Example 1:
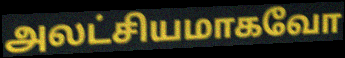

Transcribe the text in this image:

அலட்சியமாகவோ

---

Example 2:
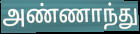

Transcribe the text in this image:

அண்ணாந்து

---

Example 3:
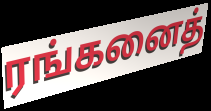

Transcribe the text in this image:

ரங்கனைத்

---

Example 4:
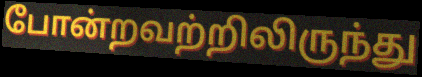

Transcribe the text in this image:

போன்றவற்றிலிருந்து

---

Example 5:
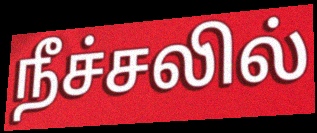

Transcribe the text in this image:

நீச்சலில்